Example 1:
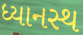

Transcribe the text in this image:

ધ્યાનસ્થ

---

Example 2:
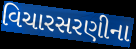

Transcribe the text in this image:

વિચારસરણીના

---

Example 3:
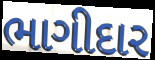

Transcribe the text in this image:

ભાગીદાર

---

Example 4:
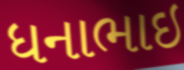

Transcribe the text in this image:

ધનાભાઇ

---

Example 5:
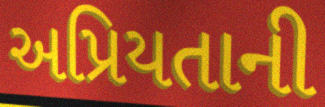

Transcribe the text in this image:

અપ્રિયતાની